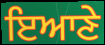
ਇਆਣੇ